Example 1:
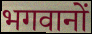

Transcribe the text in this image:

भगवानों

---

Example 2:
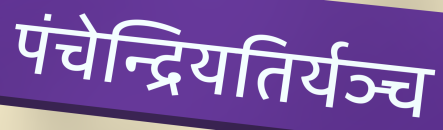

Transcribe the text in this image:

पंचेन्द्रियतिर्यञ्च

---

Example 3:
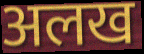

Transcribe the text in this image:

अलख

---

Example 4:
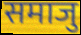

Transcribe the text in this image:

समाजु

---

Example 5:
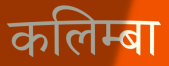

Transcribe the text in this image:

कलिम्बा